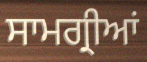
ਸਾਮਗ੍ਰੀਆਂ